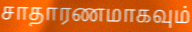
சாதாரணமாகவும்